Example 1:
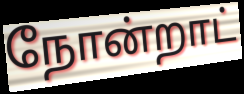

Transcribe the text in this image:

நோன்றாட்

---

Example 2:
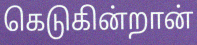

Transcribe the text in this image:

கெடுகின்றான்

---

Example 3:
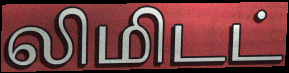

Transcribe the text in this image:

லிமிடட்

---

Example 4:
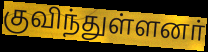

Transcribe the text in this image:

குவிந்துள்ளனர்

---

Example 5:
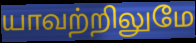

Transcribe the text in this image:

யாவற்றிலுமே